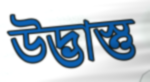
উদ্ভাস্তু